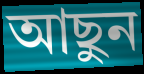
আছুন